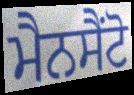
ਮੈਨਸੈਂਟੋ